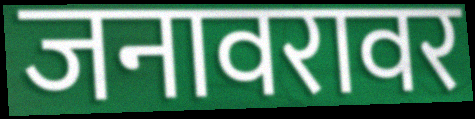
जनावरावर